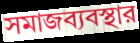
সমাজব্যবস্থার